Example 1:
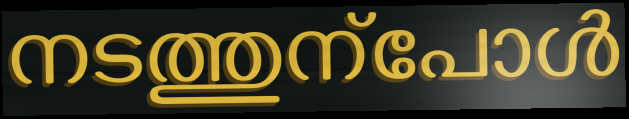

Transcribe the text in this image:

നടത്തുന്പോൾ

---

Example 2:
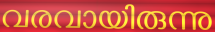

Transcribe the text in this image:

വരവായിരുന്നു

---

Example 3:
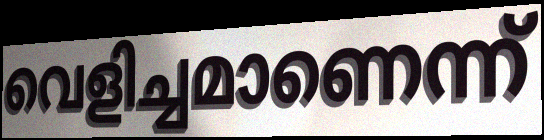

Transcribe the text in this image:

വെളിച്ചമാണെന്ന്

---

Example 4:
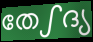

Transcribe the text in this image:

തേഽദ്യ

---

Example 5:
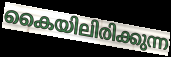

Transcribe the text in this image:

കൈയിലിരിക്കുന്ന